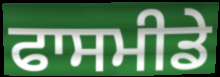
ਫਾਸਮੀਡੇ